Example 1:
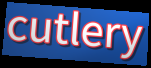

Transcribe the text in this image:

cutlery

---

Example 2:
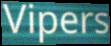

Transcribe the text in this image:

Vipers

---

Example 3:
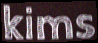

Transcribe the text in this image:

kims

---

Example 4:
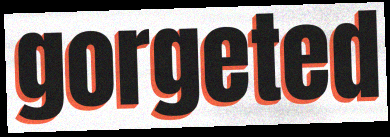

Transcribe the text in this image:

gorgeted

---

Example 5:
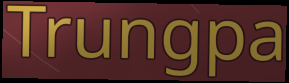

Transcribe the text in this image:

Trungpa